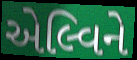
એલ્વિને